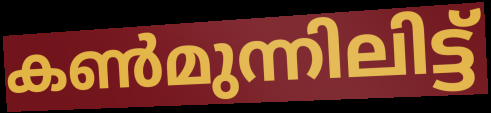
കൺമുന്നിലിട്ട്